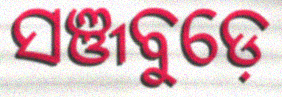
ସଞ୍ଜବୁଡ଼େ